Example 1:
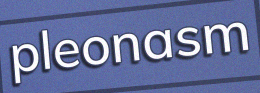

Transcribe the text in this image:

pleonasm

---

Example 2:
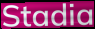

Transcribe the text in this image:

Stadia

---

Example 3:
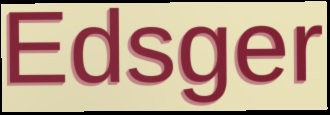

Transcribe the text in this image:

Edsger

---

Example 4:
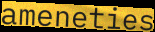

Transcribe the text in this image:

ameneties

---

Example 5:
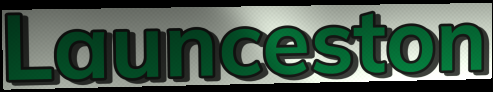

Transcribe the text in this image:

Launceston